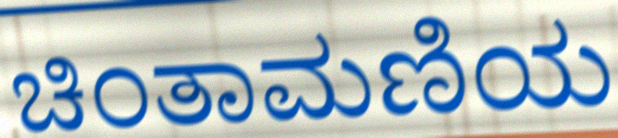
ಚಿಂತಾಮಣಿಯ